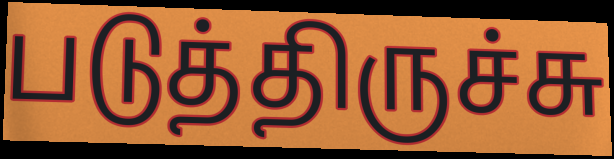
படுத்திருச்சு